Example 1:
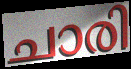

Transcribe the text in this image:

ചാരി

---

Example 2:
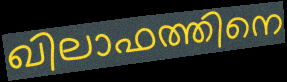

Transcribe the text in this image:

ഖിലാഫത്തിനെ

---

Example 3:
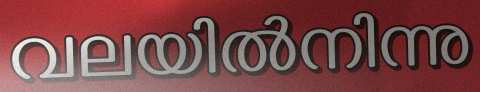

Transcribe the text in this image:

വലയിൽനിന്നു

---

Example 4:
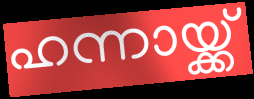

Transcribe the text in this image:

ഹന്നായ്ക്ക്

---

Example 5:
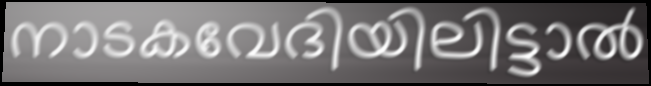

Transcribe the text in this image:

നാടകവേദിയിലിട്ടാൽ